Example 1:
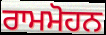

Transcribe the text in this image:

ਰਾਮਮੋਹਨ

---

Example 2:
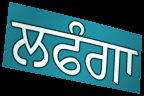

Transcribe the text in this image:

ਲਫੰਗਾ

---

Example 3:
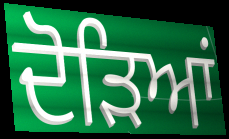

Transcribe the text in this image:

ਦੋੜਿਆਂ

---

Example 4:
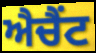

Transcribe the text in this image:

ਐਚੈਂਟ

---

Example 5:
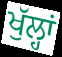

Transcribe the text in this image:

ਖੁੱਲ੍ਹਾਂ